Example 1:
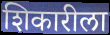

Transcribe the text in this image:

शिकारीला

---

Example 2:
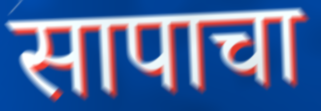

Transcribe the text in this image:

सापाचा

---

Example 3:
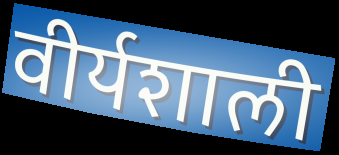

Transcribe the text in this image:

वीर्यशाली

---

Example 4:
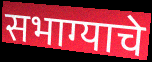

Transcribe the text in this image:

सभाग्याचे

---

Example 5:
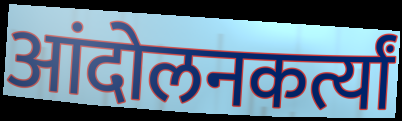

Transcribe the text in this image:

आंदोलनकर्त्यां